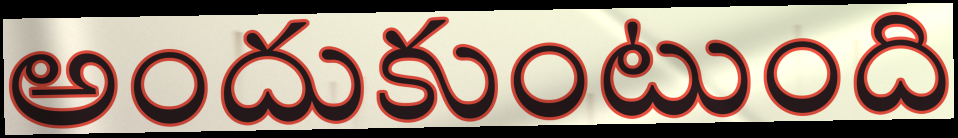
అందుకుంటుంది